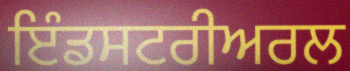
ਇੰਡਸਟਰੀਅਰਲ